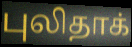
புலிதாக்